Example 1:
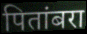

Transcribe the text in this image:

पितांबरा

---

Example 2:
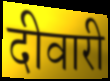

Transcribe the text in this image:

दीवारी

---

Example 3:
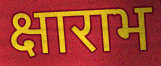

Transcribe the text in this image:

क्षाराभ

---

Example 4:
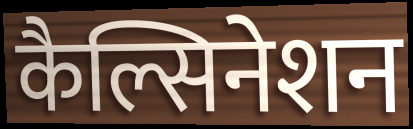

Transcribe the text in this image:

कैल्सिनेशन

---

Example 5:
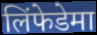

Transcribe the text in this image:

लिंफेडेमा